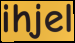
ihjel